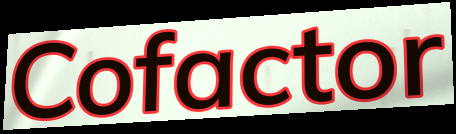
Cofactor